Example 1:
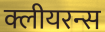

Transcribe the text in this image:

क्लीयरन्स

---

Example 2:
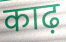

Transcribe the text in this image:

काढ़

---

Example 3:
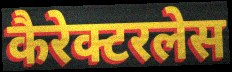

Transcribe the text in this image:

कैरेक्टरलेस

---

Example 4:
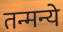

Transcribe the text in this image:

तन्मन्ये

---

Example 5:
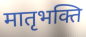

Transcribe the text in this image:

मातृभक्ति